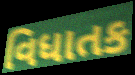
વિધાતક